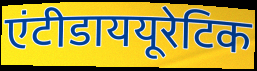
एंटीडाययूरेटिक